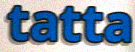
tatta